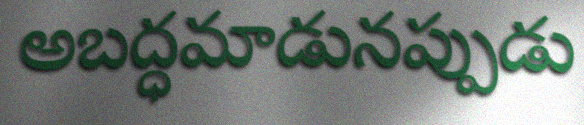
అబద్ధమాడునప్పుడు